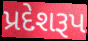
પ્રદેશરૂપ